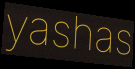
yashas